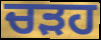
ਚੜਹ